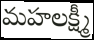
మహలక్ష్మీ